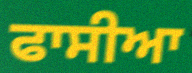
ਫਾਸੀਆ